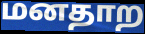
மனதாற